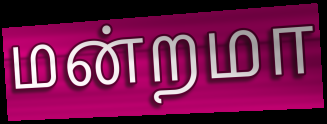
மன்றமா